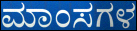
ಮಾಂಸಗಳ